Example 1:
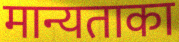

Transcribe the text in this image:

मान्यताका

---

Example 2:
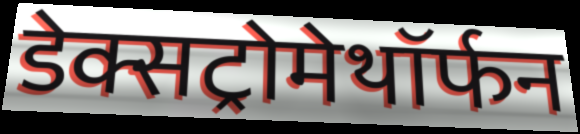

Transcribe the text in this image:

डेक्सट्रोमेथॉर्फन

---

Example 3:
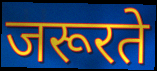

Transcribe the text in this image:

जरूरते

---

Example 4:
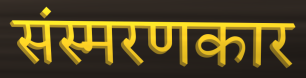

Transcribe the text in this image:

संस्मरणकार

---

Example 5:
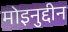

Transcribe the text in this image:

मोइनुद्दीन